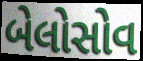
બેલોસોવ